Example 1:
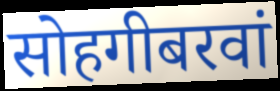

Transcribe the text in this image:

सोहगीबरवां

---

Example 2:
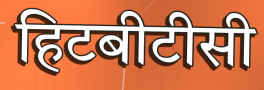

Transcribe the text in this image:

हिटबीटीसी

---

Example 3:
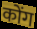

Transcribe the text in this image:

कोंग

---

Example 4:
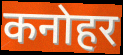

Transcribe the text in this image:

कनोहर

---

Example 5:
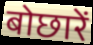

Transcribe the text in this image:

बोछारें